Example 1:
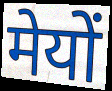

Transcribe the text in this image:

मेयों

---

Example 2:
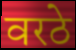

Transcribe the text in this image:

वरठे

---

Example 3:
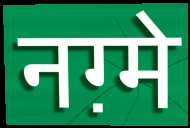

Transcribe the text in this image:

नग़्मे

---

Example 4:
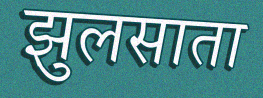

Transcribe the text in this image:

झुलसाता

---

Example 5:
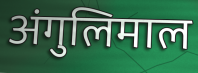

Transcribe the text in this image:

अंगुलिमाल